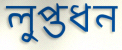
লুপ্তধন